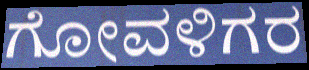
ಗೋವಳಿಗರ